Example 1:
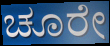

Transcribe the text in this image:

ಚೂರೇ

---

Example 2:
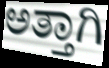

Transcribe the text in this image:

ಅತ್ತಾಗಿ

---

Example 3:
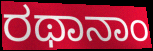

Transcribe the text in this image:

ರಥಾನಾಂ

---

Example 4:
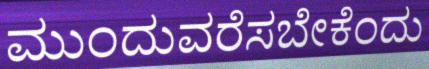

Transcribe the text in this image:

ಮುಂದುವರೆಸಬೇಕೆಂದು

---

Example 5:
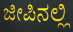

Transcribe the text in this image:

ಜೀಪಿನಲ್ಲಿ